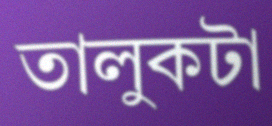
তালুকটা